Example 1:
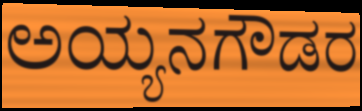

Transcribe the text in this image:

ಅಯ್ಯನಗೌಡರ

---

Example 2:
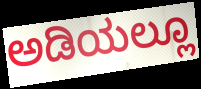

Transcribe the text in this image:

ಅಡಿಯಲ್ಲೂ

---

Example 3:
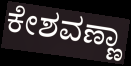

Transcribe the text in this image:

ಕೇಶವಣ್ಣಾ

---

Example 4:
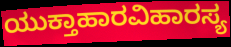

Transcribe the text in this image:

ಯುಕ್ತಾಹಾರವಿಹಾರಸ್ಯ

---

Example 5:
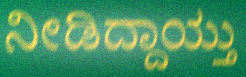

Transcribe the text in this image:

ನೀಡಿದ್ದಾಯ್ತು